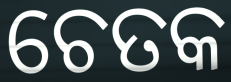
ଚେତକ